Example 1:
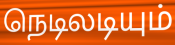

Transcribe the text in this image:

நெடிலடியும்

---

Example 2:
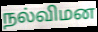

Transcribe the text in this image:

நல்விமன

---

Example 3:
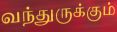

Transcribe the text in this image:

வந்துருக்கும்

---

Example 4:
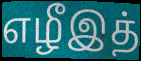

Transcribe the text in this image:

எழீஇத்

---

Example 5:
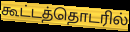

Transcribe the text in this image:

கூட்டத்தொடரில்